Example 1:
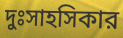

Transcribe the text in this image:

দুঃসাহসিকার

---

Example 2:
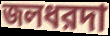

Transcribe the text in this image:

জলধরদা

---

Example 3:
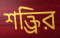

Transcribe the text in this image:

শক্ত্রির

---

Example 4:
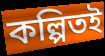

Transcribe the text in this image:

কল্পিতই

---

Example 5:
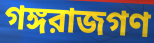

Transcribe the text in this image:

গঙ্গরাজগণ